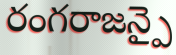
రంగరాజన్పై